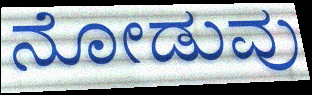
ನೋಡುವು